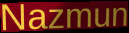
Nazmun